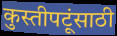
कुस्तीपटूंसाठी